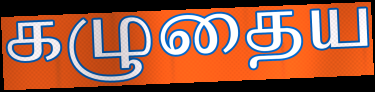
கழுதைய